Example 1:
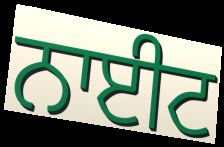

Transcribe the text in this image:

ਨਾਈਟ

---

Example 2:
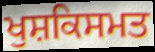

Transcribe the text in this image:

ਖੁਸ਼ਕਿਸਮਤ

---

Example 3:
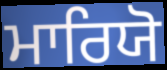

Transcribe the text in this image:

ਮਾਰਿਯੋ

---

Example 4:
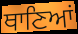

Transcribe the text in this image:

ਥਾਣਿਆਂ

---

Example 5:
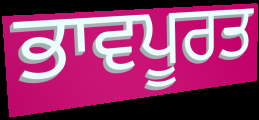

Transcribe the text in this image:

ਭਾਵਪੂਰਤ